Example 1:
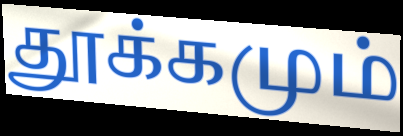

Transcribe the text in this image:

தூக்கமும்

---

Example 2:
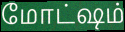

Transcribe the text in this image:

மோட்ஷம்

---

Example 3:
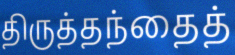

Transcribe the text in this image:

திருத்தந்தைத்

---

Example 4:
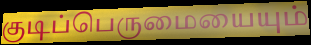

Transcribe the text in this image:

குடிப்பெருமையையும்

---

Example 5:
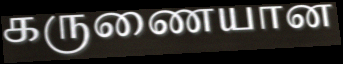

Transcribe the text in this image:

கருணையான